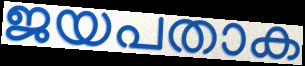
ജയപതാക